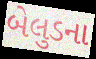
બેલુડના